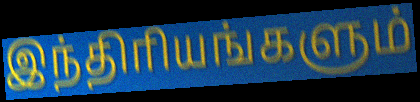
இந்திரியங்களும்